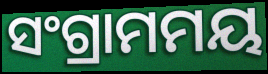
ସଂଗ୍ରାମମୟ